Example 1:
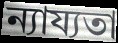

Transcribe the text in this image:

ন্যায্যতা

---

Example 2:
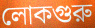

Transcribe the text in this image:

লোকগুরু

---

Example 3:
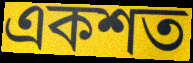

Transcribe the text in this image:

একশত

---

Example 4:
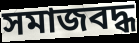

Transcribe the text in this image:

সমাজবদ্ধ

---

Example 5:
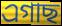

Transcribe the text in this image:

এগাছ